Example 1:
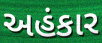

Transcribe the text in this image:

અહંકાર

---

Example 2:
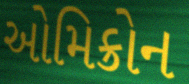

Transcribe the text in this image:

ઓમિક્રોન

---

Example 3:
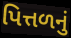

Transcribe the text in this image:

પિત્તળનું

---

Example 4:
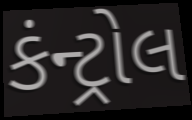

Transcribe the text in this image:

કંન્ટ્રોલ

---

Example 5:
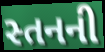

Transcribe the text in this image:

સ્તનની